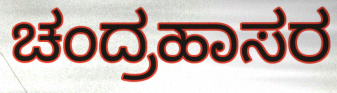
ಚಂದ್ರಹಾಸರ